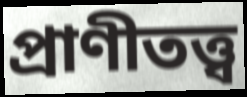
প্রাণীতত্ত্ব